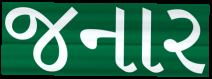
જનાર